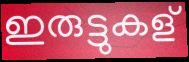
ഇരുട്ടുകള്